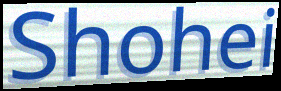
Shohei